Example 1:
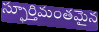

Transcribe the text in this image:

స్ఫూర్తిమంతమైన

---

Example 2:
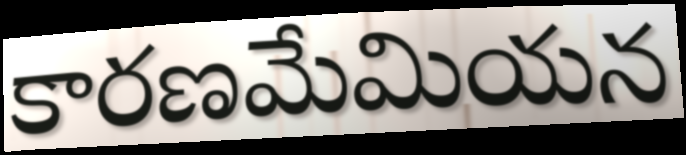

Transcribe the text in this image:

కారణమేమియన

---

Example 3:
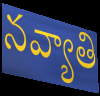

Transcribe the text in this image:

నవ్యాతి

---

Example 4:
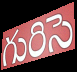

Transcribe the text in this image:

గురిసె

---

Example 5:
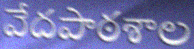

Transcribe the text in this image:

వేదపాఠశాల